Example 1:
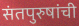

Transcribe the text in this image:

संतपुरुषांची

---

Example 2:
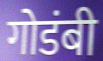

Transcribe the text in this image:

गोडंबी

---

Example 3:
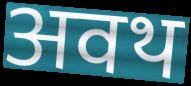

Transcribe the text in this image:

अवथ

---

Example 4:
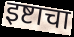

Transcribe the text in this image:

इष्टाचा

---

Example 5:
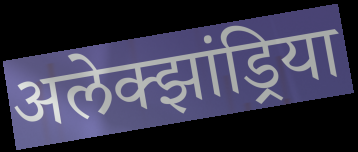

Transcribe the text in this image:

अलेक्झांड्रिया